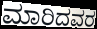
ಮಾರಿದವರ